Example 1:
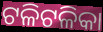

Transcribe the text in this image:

ଟଳିଟଳିକା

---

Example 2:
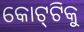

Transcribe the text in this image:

କୋଟ୍‌ଟିକୁ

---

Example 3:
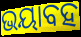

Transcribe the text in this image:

ଭୟାବହ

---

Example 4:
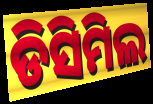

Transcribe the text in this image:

ଡିସିମିଲ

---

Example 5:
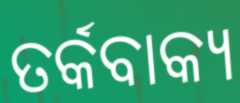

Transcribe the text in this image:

ତର୍କବାକ୍ୟ